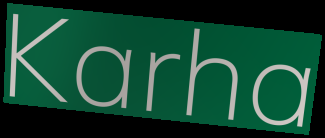
Karha